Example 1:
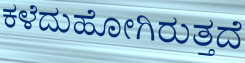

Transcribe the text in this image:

ಕಳೆದುಹೋಗಿರುತ್ತದೆ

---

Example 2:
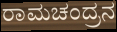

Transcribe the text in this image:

ರಾಮಚಂದ್ರನ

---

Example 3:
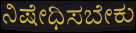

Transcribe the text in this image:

ನಿಷೇಧಿಸಬೇಕು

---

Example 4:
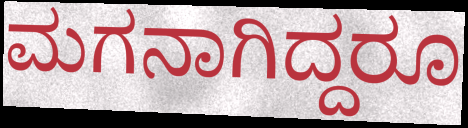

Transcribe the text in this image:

ಮಗನಾಗಿದ್ದರೂ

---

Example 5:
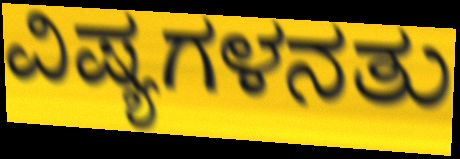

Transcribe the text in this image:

ವಿಷ್ಯಗಳನತು